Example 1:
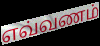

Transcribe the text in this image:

எவ்வணம்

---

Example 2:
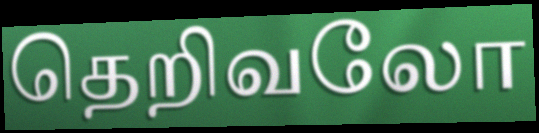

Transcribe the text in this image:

தெறிவலோ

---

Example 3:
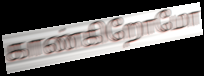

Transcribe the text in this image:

காண்கிறோமோ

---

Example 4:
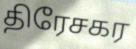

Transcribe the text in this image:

திரேசகர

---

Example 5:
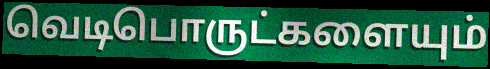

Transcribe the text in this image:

வெடிபொருட்களையும்